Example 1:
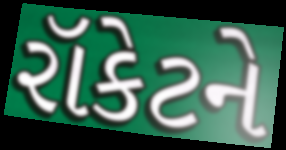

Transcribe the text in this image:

રૉકેટને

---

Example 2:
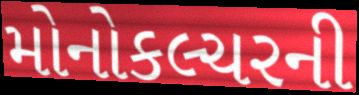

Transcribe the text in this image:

મોનોકલ્ચરની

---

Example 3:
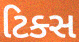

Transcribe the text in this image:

ટિક્સ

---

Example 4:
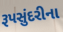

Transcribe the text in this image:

રૂપસુંદરીના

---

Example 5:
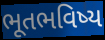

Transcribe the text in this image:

ભૂતભવિષ્ય